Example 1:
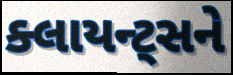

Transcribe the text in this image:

ક્લાયન્ટ્સને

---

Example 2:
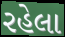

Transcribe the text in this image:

રહેલા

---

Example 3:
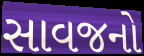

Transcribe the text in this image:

સાવજનો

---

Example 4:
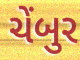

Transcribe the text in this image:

ચેંબુર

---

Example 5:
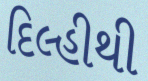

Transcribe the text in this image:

દિલ્હીથી